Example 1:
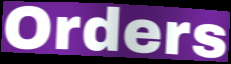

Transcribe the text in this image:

Orders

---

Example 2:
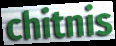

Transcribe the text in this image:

chitnis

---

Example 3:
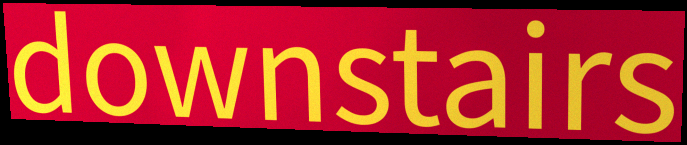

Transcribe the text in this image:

downstairs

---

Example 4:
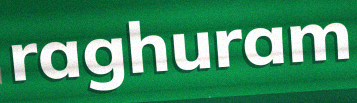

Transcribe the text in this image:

raghuram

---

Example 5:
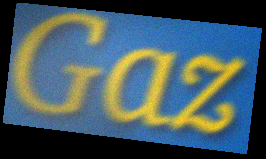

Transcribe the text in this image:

Gaz